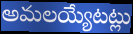
అమలయ్యేటట్లు